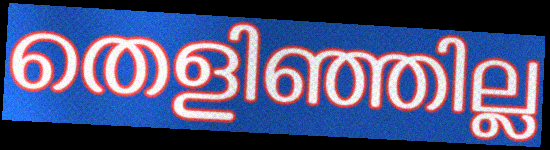
തെളിഞ്ഞില്ല